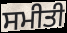
ਸਮੀਤੀ